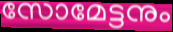
സോമേട്ടനും